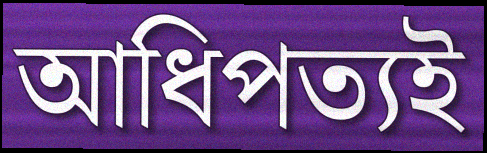
আধিপত্যই